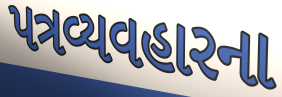
પત્રવ્યવહારના